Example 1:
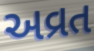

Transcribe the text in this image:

અવ્રત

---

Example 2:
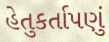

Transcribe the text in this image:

હેતુકર્તાપણું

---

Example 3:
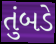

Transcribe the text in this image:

તુંબડે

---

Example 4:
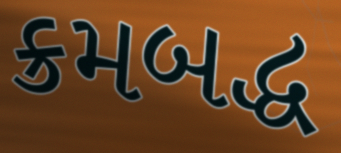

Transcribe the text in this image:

ક્રમબદ્ધ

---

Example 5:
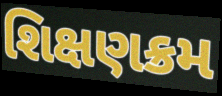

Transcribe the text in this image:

શિક્ષણક્રમ